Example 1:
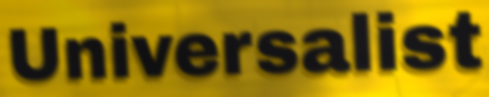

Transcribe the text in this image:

Universalist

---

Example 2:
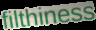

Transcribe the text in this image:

filthiness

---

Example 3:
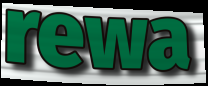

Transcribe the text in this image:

rewa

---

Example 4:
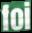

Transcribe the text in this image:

foi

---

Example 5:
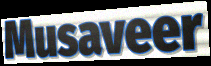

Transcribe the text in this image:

Musaveer